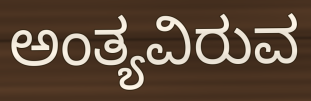
ಅಂತ್ಯವಿರುವ